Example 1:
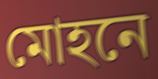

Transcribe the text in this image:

মোহনে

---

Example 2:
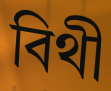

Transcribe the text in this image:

বিথী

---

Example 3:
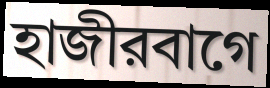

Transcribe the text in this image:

হাজীরবাগে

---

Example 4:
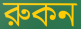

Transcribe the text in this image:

রুকন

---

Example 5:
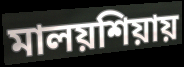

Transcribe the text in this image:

মালয়শিয়ায়